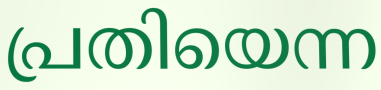
പ്രതിയെന്ന